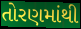
તોરણમાંથી